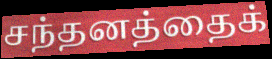
சந்தனத்தைக்